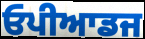
ਓਪੀਆਡਜ